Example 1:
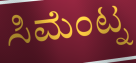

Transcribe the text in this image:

ಸಿಮೆಂಟ್ನ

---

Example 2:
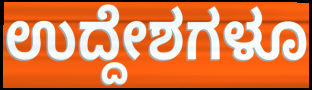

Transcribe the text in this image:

ಉದ್ದೇಶಗಳೂ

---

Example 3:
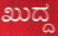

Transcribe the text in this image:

ಖುದ್ದ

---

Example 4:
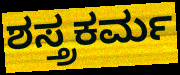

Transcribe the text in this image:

ಶಸ್ತ್ರಕರ್ಮ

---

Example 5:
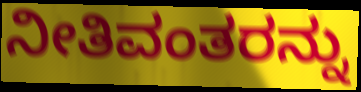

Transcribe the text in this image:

ನೀತಿವಂತರನ್ನು